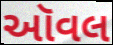
ઑવલ